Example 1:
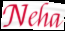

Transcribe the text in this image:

Neha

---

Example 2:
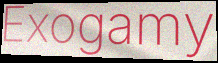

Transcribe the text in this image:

Exogamy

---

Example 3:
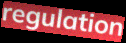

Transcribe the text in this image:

regulation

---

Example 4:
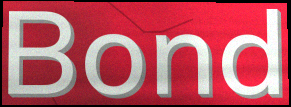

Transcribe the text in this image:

Bond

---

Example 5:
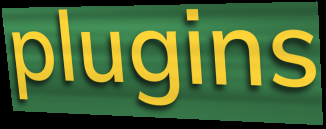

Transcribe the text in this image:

plugins